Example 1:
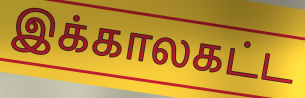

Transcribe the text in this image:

இக்காலகட்ட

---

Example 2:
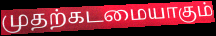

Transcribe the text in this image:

முதற்கடமையாகும்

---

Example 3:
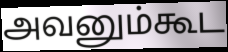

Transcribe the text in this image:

அவனும்கூட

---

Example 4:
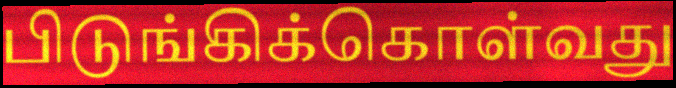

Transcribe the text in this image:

பிடுங்கிக்கொள்வது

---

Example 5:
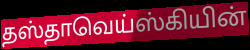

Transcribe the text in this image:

தஸ்தாவெய்ஸ்கியின்